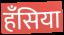
हँसिया